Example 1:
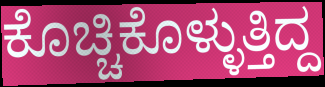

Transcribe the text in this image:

ಕೊಚ್ಚಿಕೊಳ್ಳುತ್ತಿದ್ದ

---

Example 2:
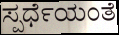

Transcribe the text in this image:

ಸ್ಪರ್ಧೆಯಂತೆ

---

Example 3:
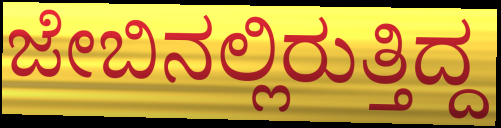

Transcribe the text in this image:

ಜೇಬಿನಲ್ಲಿರುತ್ತಿದ್ದ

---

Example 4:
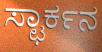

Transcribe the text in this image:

ಸ್ಟಾರ್ಕನ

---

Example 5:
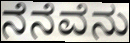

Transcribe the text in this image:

ನೆನೆವೆನು